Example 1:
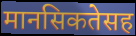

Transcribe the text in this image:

मानसिकतेसह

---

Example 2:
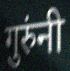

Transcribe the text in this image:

गुरुंनी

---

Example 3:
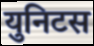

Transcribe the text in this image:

युनिटस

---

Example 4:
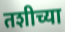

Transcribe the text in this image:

तशीच्या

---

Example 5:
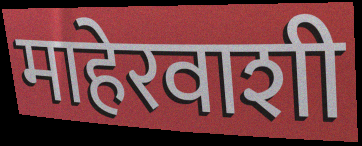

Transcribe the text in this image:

माहेरवाशी